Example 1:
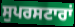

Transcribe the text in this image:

ਸੁਪਰਸਟਾਰਾਂ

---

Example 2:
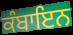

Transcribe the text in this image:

ਕੰਬਾਇਨ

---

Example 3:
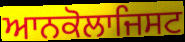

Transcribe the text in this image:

ਆਨਕੋਲਾਜਿਸਟ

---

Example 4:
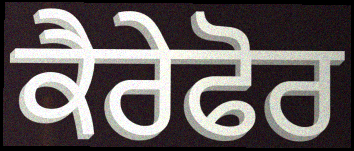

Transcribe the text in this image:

ਕੈਰੇਫੋਰ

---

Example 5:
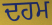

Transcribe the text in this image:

ਦਹਮ